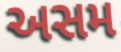
અસમ